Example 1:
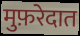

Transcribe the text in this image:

मुफ़रेदात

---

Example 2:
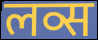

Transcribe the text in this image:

लव्स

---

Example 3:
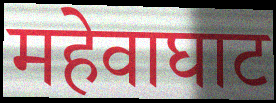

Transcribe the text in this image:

महेवाघाट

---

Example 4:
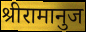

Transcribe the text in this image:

श्रीरामानुज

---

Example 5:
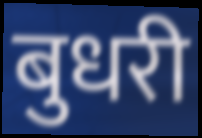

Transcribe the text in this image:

बुधरी